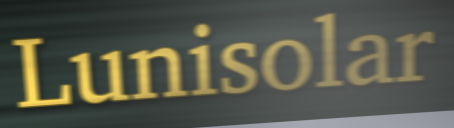
Lunisolar